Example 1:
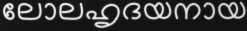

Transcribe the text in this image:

ലോലഹൃദയനായ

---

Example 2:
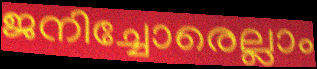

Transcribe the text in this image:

ജനിച്ചോരെല്ലാം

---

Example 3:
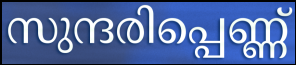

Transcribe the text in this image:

സുന്ദരിപ്പെണ്ണ്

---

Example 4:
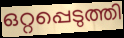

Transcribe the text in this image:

ഒറ്റപ്പെടുത്തി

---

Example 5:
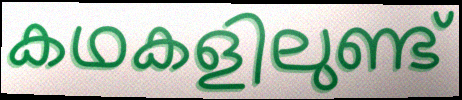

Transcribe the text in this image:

കഥകളിലുണ്ട്